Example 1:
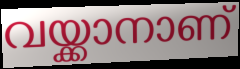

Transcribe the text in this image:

വയ്ക്കാനാണ്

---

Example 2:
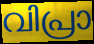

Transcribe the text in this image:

വിപ്രാ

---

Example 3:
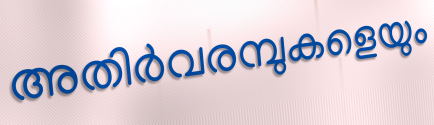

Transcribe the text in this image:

അതിർവരമ്പുകളെയും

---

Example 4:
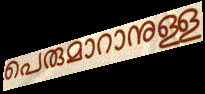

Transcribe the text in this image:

പെരുമാറാനുള്ള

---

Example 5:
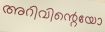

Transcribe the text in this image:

അറിവിന്റെയോ